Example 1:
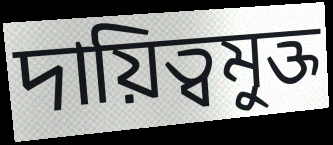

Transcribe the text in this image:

দায়িত্বমুক্ত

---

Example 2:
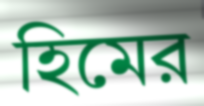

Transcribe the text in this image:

হিমের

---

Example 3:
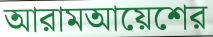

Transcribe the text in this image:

আরামআয়েশের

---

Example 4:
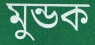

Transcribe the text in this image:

মুন্ডক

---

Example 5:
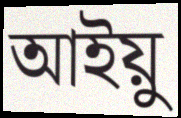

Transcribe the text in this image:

আইয়ু